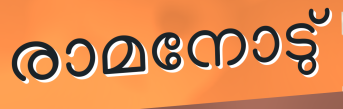
രാമനോടു്